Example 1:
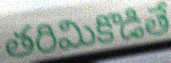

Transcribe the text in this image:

తరిమికొడితే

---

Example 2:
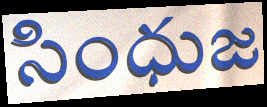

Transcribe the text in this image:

సింధుజ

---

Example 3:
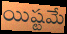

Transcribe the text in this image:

యిష్టమే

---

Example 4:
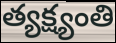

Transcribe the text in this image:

త్యక్ష్యంతి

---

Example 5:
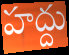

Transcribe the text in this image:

హద్దు